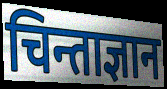
चिन्ताज्ञान